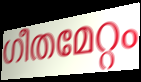
ഗീതമേറ്റം